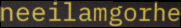
neeilamgorhe